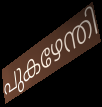
പുകഴേന്തി